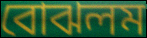
বোঝলম